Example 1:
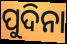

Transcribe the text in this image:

ପୁଦିନା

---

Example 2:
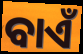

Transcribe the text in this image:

ବାଏଁ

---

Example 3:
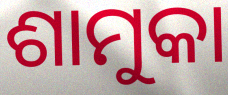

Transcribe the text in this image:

ଶାମୁକା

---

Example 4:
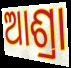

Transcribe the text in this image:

ଆଶ୍ରା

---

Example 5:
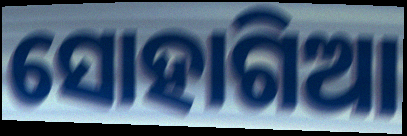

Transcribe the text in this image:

ସୋହାଗିଆ